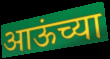
आऊंच्या